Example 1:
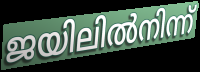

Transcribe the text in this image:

ജയിലിൽനിന്ന്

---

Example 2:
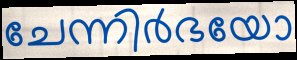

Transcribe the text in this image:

ചേന്നിർഭയോ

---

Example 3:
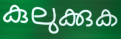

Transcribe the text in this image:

കുലുക്കുക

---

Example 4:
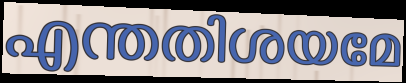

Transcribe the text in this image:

എന്തതിശയമേ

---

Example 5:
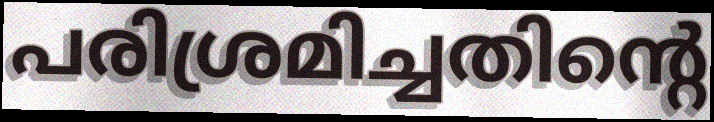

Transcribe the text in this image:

പരിശ്രമിച്ചതിന്റെ